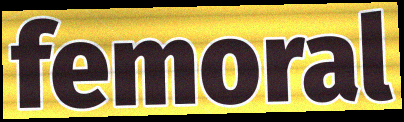
femoral